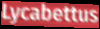
Lycabettus